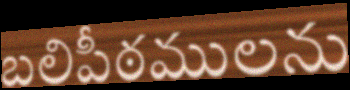
బలిపీఠములను